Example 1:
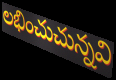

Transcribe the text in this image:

లభించుచున్నవి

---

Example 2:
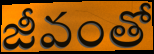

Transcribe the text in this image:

జీవంతో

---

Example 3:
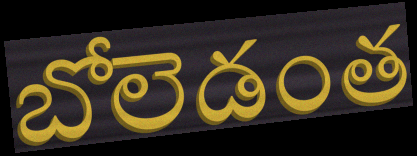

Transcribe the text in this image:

బోలెడంత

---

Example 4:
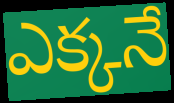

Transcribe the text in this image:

ఎక్కనే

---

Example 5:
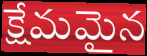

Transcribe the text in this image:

క్షేమమైన